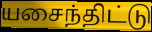
யசைந்திட்டு